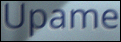
Upame